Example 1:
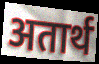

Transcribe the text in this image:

अतार्थ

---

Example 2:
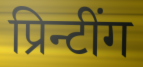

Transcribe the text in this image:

प्रिन्टींग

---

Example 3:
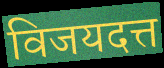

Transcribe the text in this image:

विजयदत्त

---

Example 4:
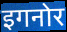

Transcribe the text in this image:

इगनोर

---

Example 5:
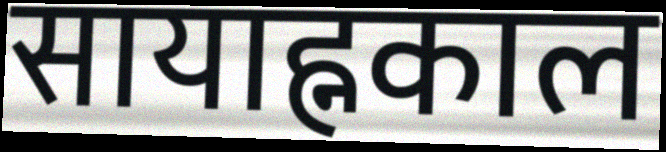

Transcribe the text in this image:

सायाह्नकाल